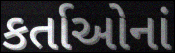
કર્તાઓનાં